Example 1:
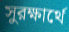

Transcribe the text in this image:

সুরক্ষার্থে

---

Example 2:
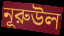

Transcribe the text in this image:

নূরুউল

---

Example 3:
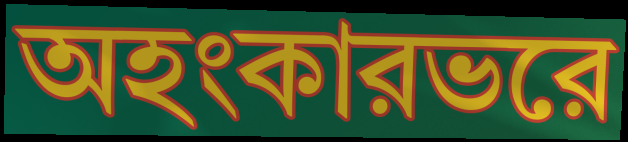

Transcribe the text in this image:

অহংকারভরে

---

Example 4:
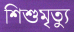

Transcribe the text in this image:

শিশুমৃত্যু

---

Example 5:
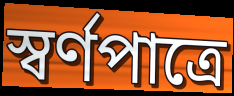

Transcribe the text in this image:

স্বর্ণপাত্রে